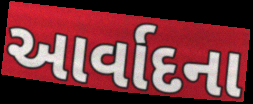
આર્વાદના